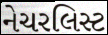
નેચરલિસ્ટ